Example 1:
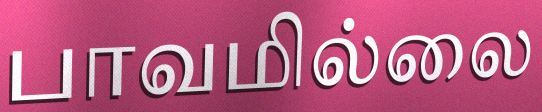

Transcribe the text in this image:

பாவமில்லை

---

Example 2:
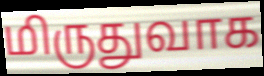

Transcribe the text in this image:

மிருதுவாக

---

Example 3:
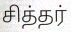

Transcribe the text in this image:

சித்தர்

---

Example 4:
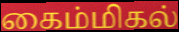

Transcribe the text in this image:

கைம்மிகல்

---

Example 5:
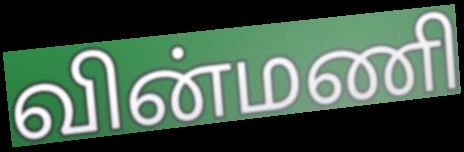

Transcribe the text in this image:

வின்மணி